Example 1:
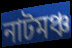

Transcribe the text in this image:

নাটমঞ্চ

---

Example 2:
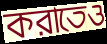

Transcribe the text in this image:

করাতেও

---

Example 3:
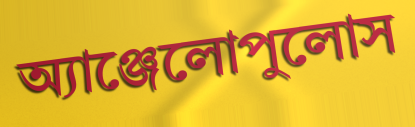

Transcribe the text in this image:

অ্যাঞ্জেলোপুলোস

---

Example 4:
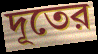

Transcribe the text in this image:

দূতের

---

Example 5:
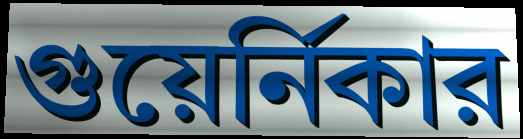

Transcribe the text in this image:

গুয়ের্নিকার